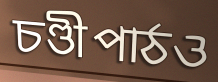
চণ্ডীপাঠও